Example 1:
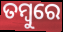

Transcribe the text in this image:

ତମ୍ବୁରେ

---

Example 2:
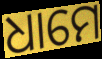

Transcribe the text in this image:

ଧାମେ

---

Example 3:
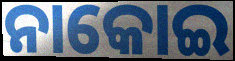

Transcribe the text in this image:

ନାକୋଇ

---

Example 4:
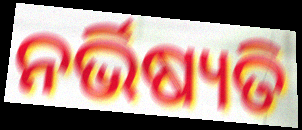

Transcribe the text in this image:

ନର୍ଭିଷ୍ୟତି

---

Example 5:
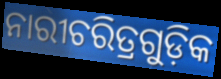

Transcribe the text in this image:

ନାରୀଚରିତ୍ରଗୁଡ଼ିକ